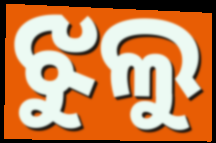
ଝୁଲୁ